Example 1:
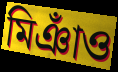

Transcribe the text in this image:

মিঞাঁও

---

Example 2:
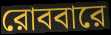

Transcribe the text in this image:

রোববারে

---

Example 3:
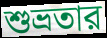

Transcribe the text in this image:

শুভ্রতার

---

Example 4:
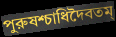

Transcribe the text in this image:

পুরুষশ্চাধিদৈবতম্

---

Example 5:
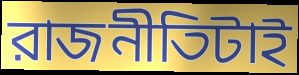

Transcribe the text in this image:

রাজনীতিটাই